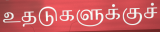
உதடுகளுக்குச்